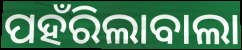
ପହଁରିଲାବାଲା